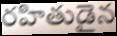
రహితుడైన